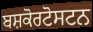
ਬਸ਼ਕੋਰਟੋਸਟਨ